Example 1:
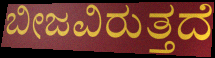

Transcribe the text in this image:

ಬೀಜವಿರುತ್ತದೆ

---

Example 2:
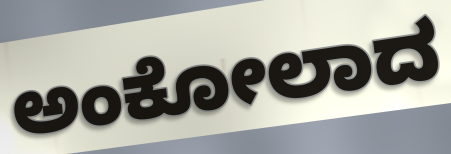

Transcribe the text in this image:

ಅಂಕೋಲಾದ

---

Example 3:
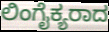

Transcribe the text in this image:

ಲಿಂಗೈಕ್ಯರಾದ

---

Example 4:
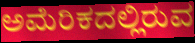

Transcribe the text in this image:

ಅಮೆರಿಕದಲ್ಲಿರುವ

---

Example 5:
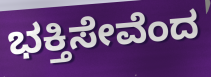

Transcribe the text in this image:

ಭಕ್ತಿಸೇವೆಂದ